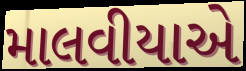
માલવીયાએ